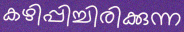
കഴിപ്പിച്ചിരിക്കുന്ന